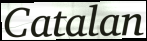
Catalan